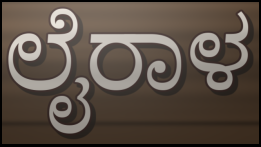
ಲೈರಾಳ